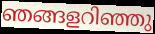
ഞങ്ങളറിഞ്ഞു